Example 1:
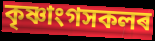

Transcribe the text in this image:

কৃষ্ণাংগসকলৰ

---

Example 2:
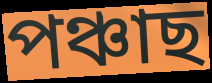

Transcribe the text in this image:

পঞ্চাছ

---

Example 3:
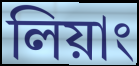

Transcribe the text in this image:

লিয়াং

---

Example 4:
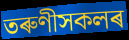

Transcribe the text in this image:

তৰুণীসকলৰ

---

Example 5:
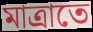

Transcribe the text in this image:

মাত্ৰাতে